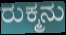
ರುಕ್ಮನು